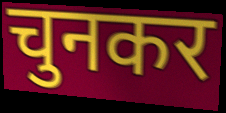
चुनकर